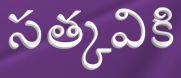
సత్కవికి